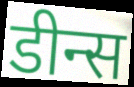
डीन्स